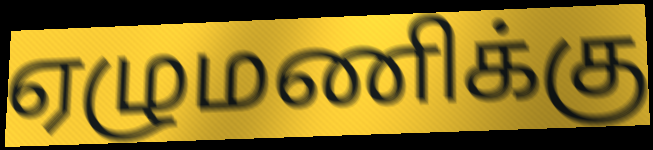
ஏழுமணிக்கு